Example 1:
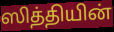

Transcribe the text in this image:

ஸித்தியின்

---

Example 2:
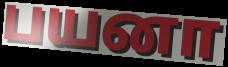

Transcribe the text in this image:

பயனா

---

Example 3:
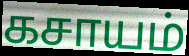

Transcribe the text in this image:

கசாயம்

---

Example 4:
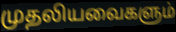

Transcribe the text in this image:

முதலியவைகளும்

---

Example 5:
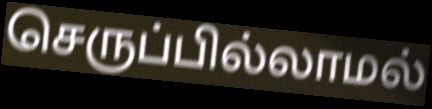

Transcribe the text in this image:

செருப்பில்லாமல்